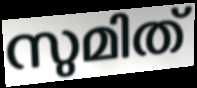
സുമിത്